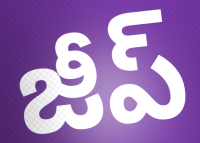
జీప్